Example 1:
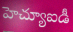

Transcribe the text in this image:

హెచ్యూఐడీ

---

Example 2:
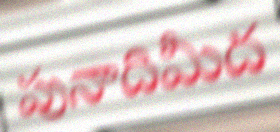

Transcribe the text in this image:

పునాదిమీద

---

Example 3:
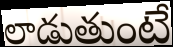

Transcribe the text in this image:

లాడుతుంటే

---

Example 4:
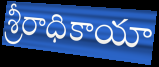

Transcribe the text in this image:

శ్రీరాధికాయా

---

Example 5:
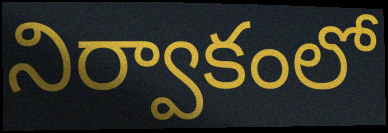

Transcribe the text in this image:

నిర్వాకంలో